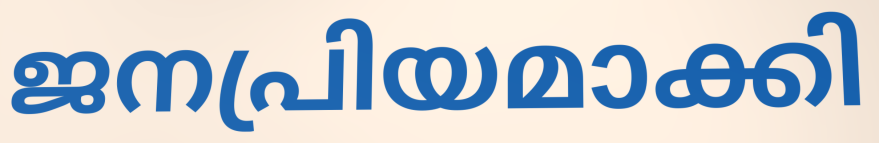
ജനപ്രിയമാക്കി